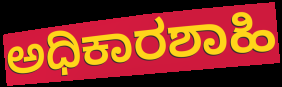
ಅಧಿಕಾರಶಾಹಿ